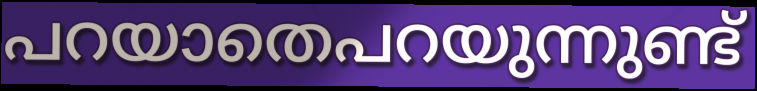
പറയാതെപറയുന്നുണ്ട്